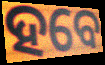
ହବେ